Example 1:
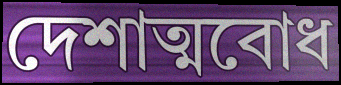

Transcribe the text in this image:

দেশাত্মবোধ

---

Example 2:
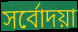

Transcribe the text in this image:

সৰ্বোদয়া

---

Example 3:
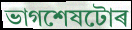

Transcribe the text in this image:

ভাগশেষটোৰ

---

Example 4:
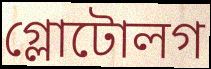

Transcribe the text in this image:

গ্লোটোলগ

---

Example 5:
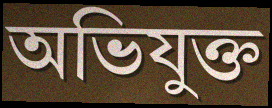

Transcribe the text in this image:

অভিযুক্ত